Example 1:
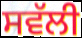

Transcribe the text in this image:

ਸਵੱਲੀ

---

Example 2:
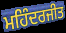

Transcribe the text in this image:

ਮਹਿੰਦਰਜੀਤ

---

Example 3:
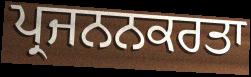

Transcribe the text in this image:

ਪ੍ਰਜਨਨਕਰਤਾ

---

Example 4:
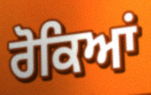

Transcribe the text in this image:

ਰੋਕਿਆਂ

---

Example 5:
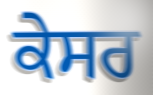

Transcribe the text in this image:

ਕੇਸਰ